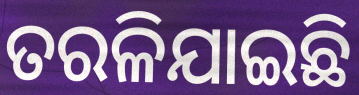
ତରଳିଯାଇଛି